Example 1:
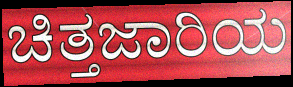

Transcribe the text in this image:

ಚಿತ್ತಜಾರಿಯ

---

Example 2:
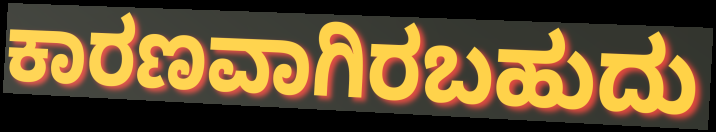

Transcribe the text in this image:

ಕಾರಣವಾಗಿರಬಹುದು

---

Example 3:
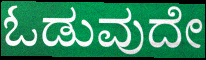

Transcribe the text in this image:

ಓಡುವುದೇ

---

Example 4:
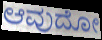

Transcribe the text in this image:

ಆವುದೋ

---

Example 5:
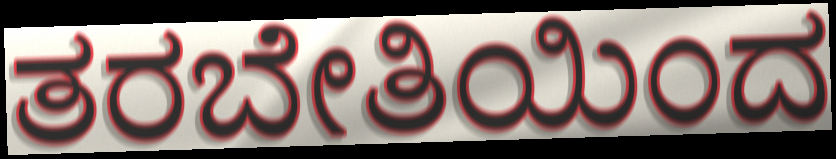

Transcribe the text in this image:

ತರಬೇತಿಯಿಂದ